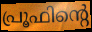
പ്രൂഫിന്റെ